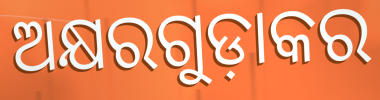
ଅକ୍ଷରଗୁଡ଼ାକର